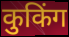
कुकिंग